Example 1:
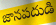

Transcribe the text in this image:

జానపదుడి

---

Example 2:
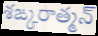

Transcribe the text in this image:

శఙ్కరాత్మన్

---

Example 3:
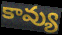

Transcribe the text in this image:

కావ్యు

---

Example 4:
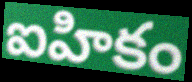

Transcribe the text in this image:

ఐహికం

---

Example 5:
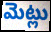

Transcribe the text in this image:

మెట్లు